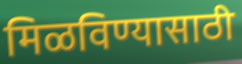
मिळविण्यासाठी